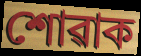
শোৱাক